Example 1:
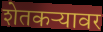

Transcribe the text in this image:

शेतकऱ्यावर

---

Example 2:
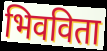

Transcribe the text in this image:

भिवविता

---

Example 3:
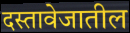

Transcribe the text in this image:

दस्तावेजातील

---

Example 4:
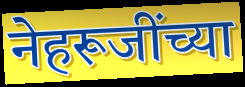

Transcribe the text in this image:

नेहरूजींच्या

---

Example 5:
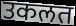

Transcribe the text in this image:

उकलत